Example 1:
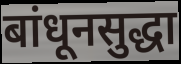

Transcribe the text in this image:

बांधूनसुद्धा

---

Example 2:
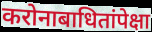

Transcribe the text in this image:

करोनाबाधितांपेक्षा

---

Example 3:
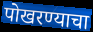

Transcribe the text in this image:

पोखरण्याचा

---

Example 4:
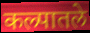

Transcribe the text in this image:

कल्पातले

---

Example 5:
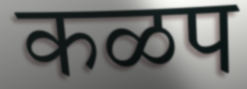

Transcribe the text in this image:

कळप